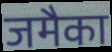
जमैका